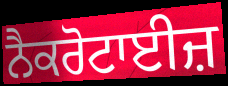
ਨੈਕਰੋਟਾਈਜ਼